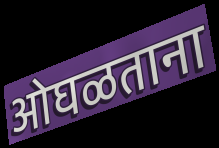
ओघळताना